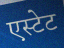
एस्टेट